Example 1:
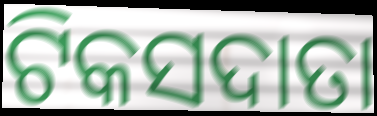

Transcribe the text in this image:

ଟିକସଦାତା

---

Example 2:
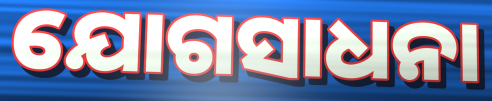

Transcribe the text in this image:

ଯୋଗସାଧନା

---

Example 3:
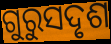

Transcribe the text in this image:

ଗୁରୁସଦୃଶ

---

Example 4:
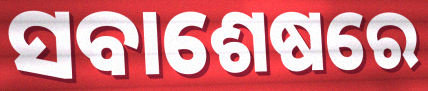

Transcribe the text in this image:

ସବାଶେଷରେ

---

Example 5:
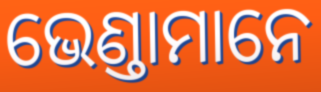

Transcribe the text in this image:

ଭେଣ୍ଡାମାନେ